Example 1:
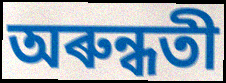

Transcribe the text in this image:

অৰুন্ধতী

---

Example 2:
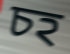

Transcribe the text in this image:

চহ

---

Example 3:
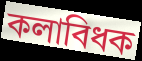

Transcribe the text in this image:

কলাবিধক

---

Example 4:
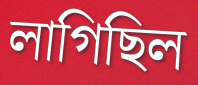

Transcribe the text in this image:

লাগিছিল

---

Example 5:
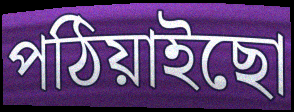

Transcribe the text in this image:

পঠিয়াইছো